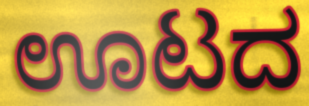
ಊಟದ